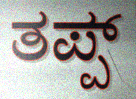
ತಪ್ಪ್